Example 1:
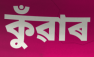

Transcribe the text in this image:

কুঁৱাৰ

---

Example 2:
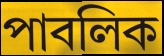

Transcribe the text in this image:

পাবলিক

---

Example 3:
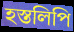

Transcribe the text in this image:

হস্তলিপি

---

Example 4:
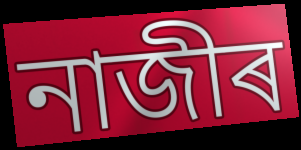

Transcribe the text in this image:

নাজীৰ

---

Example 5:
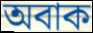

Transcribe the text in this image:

অবাক